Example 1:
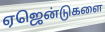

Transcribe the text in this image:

ஏஜென்டுகளை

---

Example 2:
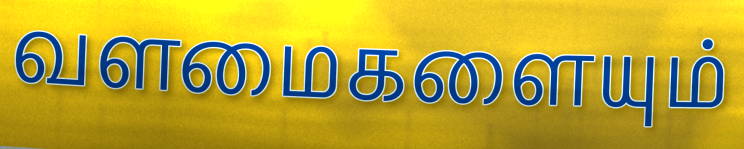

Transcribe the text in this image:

வளமைகளையும்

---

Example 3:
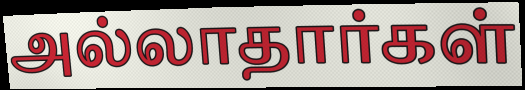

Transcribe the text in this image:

அல்லாதார்கள்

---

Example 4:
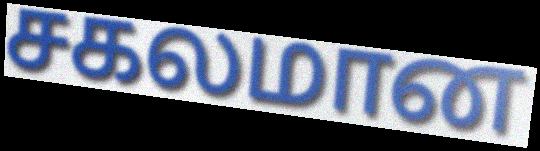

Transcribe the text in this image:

சகலமான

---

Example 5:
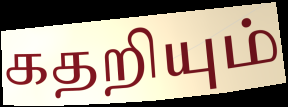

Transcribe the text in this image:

கதறியும்